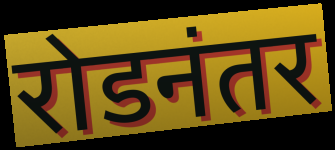
रोडनंतर